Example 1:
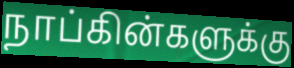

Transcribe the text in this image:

நாப்கின்களுக்கு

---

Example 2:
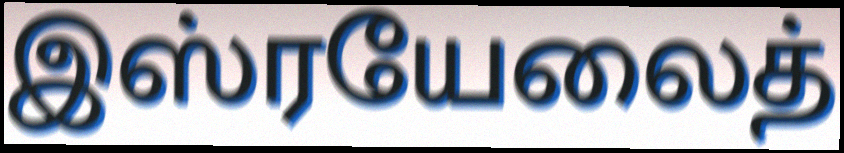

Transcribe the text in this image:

இஸ்ரயேலைத்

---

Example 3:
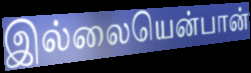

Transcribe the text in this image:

இல்லையென்பான்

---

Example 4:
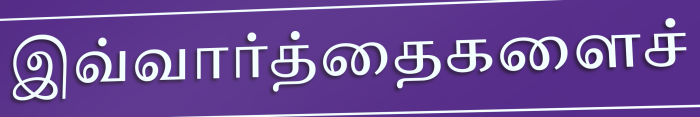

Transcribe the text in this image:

இவ்வார்த்தைகளைச்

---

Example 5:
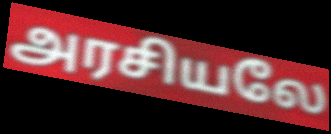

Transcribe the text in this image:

அரசியலே